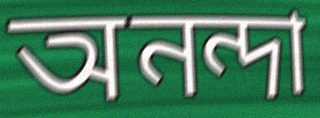
অনন্দা